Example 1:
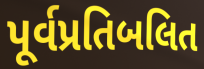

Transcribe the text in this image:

પૂર્વપ્રતિબલિત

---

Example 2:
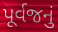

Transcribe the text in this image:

પૂર્વજનું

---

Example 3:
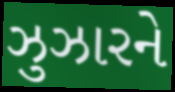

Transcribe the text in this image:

ઝુઝારને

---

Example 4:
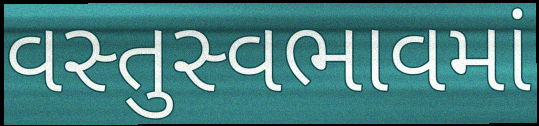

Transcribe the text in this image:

વસ્તુસ્વભાવમાં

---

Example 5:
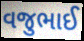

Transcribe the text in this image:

વજુભાઈ